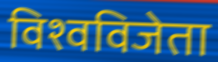
विश्वविजेता